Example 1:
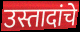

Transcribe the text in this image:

उस्तादांचे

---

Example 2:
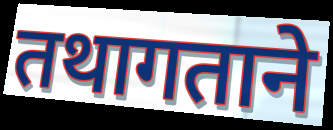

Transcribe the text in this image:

तथागताने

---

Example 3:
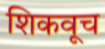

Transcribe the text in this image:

शिकवूच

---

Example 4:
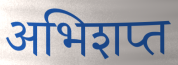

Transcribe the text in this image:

अभिशप्त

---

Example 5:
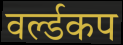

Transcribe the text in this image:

वर्ल्डकप